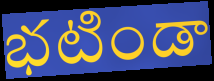
భటిండా